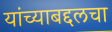
यांच्याबद्दलचा